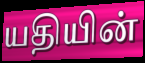
யதியின்